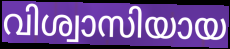
വിശ്വാസിയായ